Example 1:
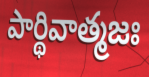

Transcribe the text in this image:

పార్థివాత్మజః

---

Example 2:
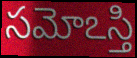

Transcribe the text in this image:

సమోఽస్తి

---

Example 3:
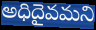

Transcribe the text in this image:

అధిదైవమని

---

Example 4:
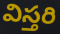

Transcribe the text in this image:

విస్తరి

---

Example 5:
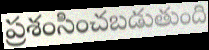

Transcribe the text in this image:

ప్రశంసించబడుతుంది